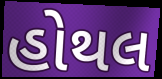
હોથલ